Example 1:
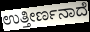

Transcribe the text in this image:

ಉತ್ತೀರ್ಣನಾದೆ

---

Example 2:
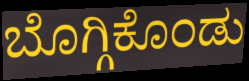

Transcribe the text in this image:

ಬೊಗ್ಗಿಕೊಂಡು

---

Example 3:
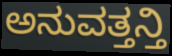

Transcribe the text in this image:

ಅನುವತ್ತನ್ತಿ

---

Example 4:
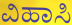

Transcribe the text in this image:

ವಿಹಾಸಿ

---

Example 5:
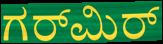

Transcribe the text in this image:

ಗರ್‌ಮಿರ್